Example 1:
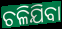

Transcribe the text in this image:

ଚଳିଯିବା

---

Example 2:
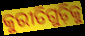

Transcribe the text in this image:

କୁରୀତିଗୁଡ଼ିକୁ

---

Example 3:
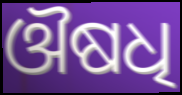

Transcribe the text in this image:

ଔଷଧି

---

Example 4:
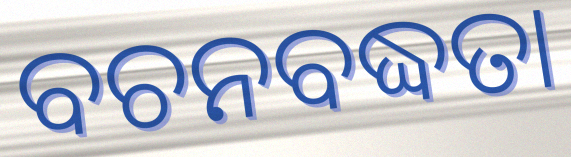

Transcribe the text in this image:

ବଚନବଦ୍ଧତା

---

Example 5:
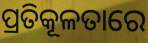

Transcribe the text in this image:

ପ୍ରତିକୂଳତାରେ